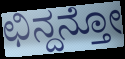
ಛಿನ್ದನ್ತೋ